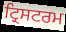
ਟ੍ਰਿਸਟਰਮ